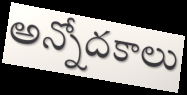
అన్నోదకాలు